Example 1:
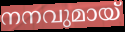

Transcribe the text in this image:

നനവുമായ്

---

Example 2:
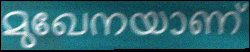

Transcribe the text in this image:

മുഖേനയാണ്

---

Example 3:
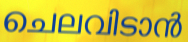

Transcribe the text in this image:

ചെലവിടാൻ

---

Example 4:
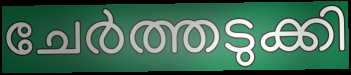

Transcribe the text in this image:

ചേർത്തടുക്കി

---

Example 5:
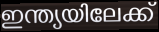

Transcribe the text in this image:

ഇന്ത്യയിലേക്ക്